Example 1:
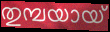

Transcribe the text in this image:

തുമ്പയായ്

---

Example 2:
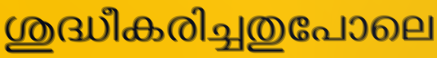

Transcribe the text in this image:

ശുദ്ധീകരിച്ചതുപോലെ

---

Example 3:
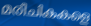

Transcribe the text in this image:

മരീചികകളെ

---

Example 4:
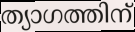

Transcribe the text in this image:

ത്യാഗത്തിന്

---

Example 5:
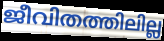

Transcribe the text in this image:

ജീവിതത്തിലില്ല